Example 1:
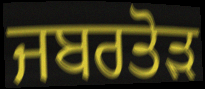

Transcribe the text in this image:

ਜਬਰਤੋੜ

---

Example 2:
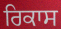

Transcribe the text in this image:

ਰਿਕਾਸ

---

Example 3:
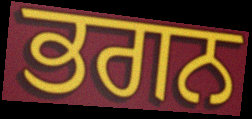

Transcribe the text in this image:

ਭਗਨ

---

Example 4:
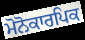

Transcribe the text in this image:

ਮੋਨੋਕਾਰਪਿਕ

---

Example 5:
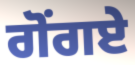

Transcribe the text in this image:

ਗੋਂਗਏ